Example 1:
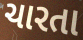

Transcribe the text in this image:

ચારતા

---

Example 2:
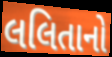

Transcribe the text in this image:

લલિતાનો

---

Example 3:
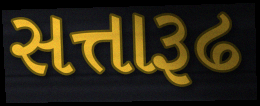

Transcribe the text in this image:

સત્તારૂઢ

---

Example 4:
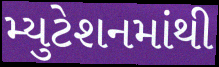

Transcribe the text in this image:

મ્યુટેશનમાંથી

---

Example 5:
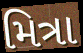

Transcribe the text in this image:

મિત્રા